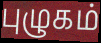
புழுகம்